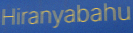
Hiranyabahu